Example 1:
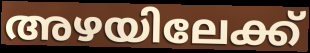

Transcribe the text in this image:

അഴയിലേക്ക്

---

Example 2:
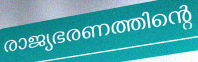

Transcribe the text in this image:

രാജ്യഭരണത്തിന്റെ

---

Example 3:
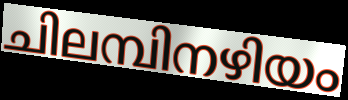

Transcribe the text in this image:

ചിലമ്പിനഴിയം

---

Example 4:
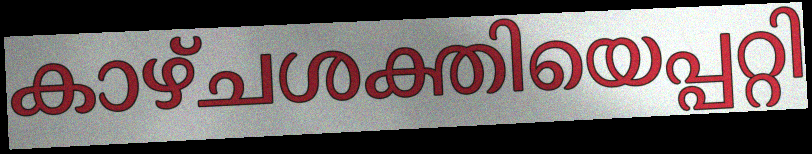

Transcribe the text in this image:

കാഴ്ചശക്തിയെപ്പറ്റി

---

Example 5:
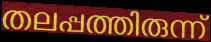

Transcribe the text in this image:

തലപ്പത്തിരുന്ന്